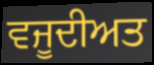
ਵਜੂਦੀਅਤ